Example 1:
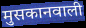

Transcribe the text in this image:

मुसकानवाली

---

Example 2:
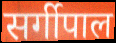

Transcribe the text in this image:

सर्गीपाल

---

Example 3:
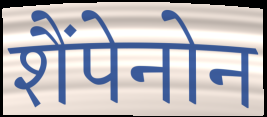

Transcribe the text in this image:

शैंपेनोन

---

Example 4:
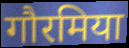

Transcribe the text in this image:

गौरमिया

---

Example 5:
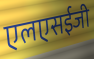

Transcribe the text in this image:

एलएसईजी